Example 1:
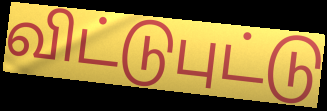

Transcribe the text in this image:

விட்டுபுட்டு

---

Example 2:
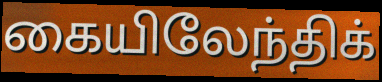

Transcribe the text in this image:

கையிலேந்திக்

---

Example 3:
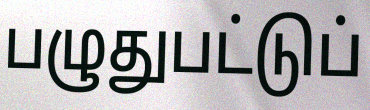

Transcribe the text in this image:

பழுதுபட்டுப்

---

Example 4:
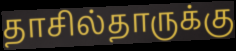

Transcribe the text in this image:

தாசில்தாருக்கு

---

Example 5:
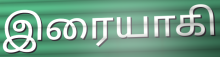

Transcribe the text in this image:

இரையாகி